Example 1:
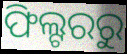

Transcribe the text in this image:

ଫିଲ୍ଟରରୁ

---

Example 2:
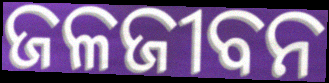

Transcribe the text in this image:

ଜଳଜୀବନ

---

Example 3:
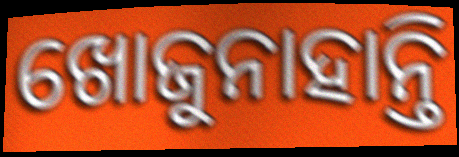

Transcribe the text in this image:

ଖୋଜୁନାହାନ୍ତି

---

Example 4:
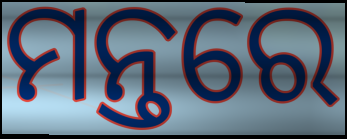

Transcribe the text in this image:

ମନ୍ତରେ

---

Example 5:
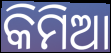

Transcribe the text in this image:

କିମିଆ